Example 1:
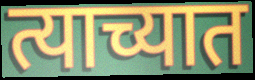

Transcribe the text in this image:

त्याच्यात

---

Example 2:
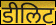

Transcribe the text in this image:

डीलिट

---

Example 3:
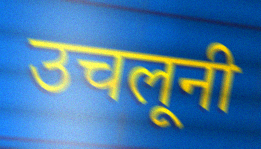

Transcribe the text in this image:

उचलूनी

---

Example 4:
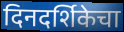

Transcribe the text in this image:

दिनदर्शिकेचा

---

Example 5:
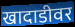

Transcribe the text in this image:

खादाडीवर